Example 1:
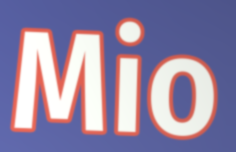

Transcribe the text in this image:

Mio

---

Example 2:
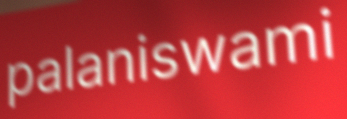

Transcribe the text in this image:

palaniswami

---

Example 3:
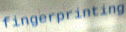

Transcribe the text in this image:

fingerprinting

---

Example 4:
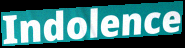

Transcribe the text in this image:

Indolence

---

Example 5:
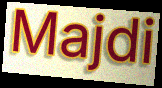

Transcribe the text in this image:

Majdi